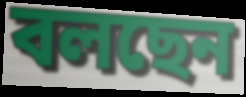
বলছেন